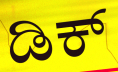
ಡಿಕ್